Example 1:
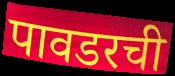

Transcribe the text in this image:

पावडरची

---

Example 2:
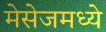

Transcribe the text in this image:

मेसेजमध्ये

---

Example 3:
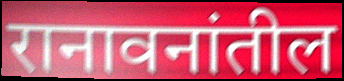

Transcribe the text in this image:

रानावनांतील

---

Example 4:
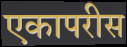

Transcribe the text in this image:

एकापरीस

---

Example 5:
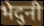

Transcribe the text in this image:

भेदुनी